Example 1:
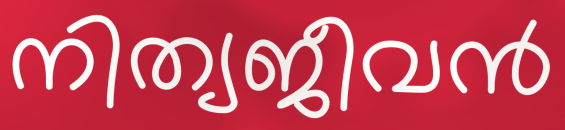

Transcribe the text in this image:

നിത്യജീവൻ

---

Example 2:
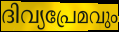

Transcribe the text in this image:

ദിവ്യപ്രേമവും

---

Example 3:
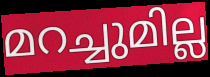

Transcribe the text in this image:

മറച്ചുമില്ല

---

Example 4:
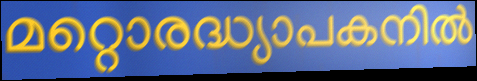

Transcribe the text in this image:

മറ്റൊരദ്ധ്യാപകനിൽ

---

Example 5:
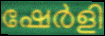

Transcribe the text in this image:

ഷേർളി